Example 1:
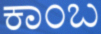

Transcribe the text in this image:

ಕಾಂಬ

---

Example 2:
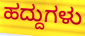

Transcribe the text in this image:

ಹದ್ದುಗಳು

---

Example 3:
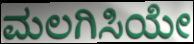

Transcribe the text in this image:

ಮಲಗಿಸಿಯೇ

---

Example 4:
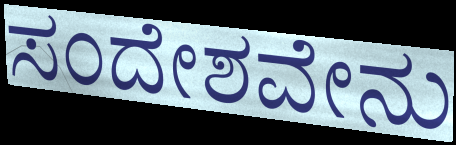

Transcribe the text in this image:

ಸಂದೇಶವೇನು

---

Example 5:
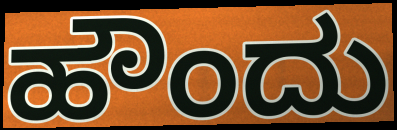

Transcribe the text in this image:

ಹೌಂದು